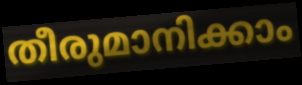
തീരുമാനിക്കാം